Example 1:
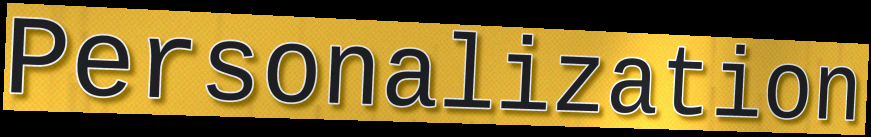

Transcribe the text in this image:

Personalization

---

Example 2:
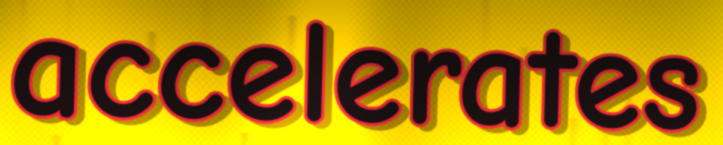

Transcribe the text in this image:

accelerates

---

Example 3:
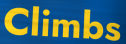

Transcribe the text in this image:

Climbs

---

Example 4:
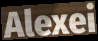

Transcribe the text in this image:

Alexei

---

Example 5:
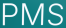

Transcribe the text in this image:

PMS